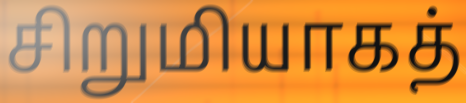
சிறுமியாகத்